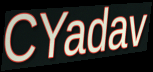
CYadav